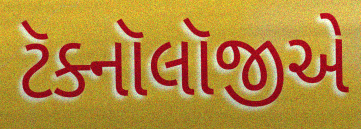
ટૅક્નૉલૉજીએ